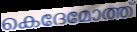
കെദേമോത്ത്